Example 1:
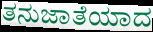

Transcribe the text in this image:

ತನುಜಾತೆಯಾದ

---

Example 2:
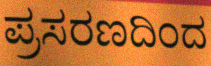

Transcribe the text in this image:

ಪ್ರಸರಣದಿಂದ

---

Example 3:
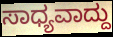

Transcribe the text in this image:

ಸಾಧ್ಯವಾದ್ದು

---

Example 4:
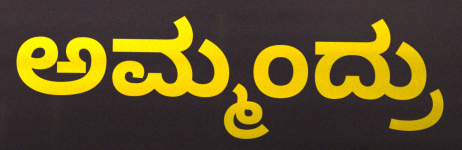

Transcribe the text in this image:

ಅಮ್ಮಂದ್ರು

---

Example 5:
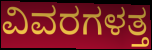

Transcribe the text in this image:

ವಿವರಗಳತ್ತ